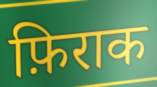
फ़िराक